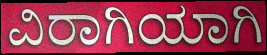
ವಿರಾಗಿಯಾಗಿ